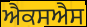
ਐਕਸਐਸ